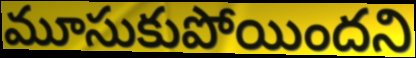
మూసుకుపోయిందని